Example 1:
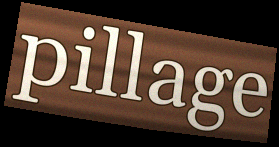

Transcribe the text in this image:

pillage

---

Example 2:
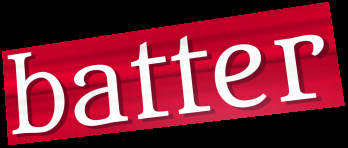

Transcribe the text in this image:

batter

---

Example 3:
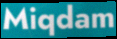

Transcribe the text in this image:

Miqdam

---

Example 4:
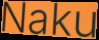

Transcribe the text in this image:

Naku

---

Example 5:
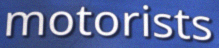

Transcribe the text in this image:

motorists